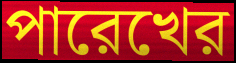
পারেখের